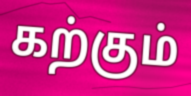
கற்கும்